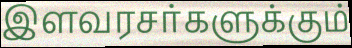
இளவரசர்களுக்கும்